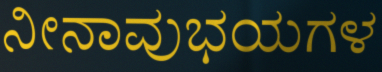
ನೀನಾವುಭಯಗಳ